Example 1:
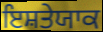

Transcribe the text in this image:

ਇਸ਼ਤੇਯਾਕ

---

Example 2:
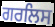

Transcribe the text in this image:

ਗਰਲਿਸ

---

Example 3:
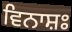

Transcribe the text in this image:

ਵਿਨਾਸ਼ਃ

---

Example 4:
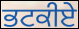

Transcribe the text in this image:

ਭਟਕੀਏ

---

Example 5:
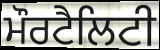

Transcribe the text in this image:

ਮੌਰਟੈਲਿਟੀ